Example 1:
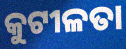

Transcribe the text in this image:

କୁଟୀଳତା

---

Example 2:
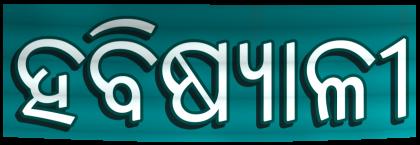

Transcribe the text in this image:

ହବିଷ୍ୟାଳୀ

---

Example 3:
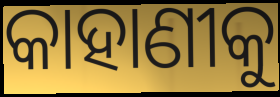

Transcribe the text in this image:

କାହାଣୀକୁ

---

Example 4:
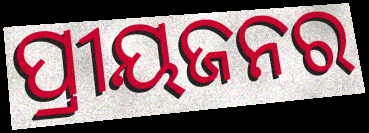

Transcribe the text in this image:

ପ୍ରୀୟଜନର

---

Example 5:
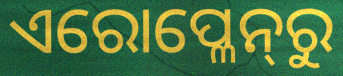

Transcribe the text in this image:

ଏରୋପ୍ଳେନ୍‍ରୁ